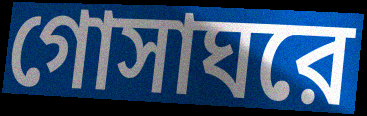
গোসাঘরে